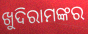
ଖୁଦିରାମଙ୍କର